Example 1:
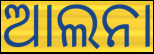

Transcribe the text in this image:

ଆଲନା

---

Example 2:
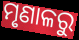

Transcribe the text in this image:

ମୃଣାଳରୁ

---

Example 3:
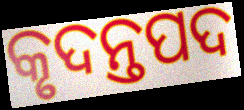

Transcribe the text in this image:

କୃଦନ୍ତପଦ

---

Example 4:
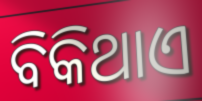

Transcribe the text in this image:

ବିକିଥାଏ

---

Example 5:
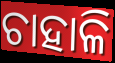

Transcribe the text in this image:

ଚାହାଳି